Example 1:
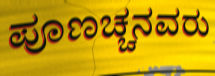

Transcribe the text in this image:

ಪೂಣಚ್ಚನವರು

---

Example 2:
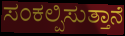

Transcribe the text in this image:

ಸಂಕಲ್ಪಿಸುತ್ತಾನೆ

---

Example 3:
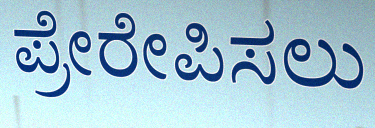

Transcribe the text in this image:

ಪ್ರೇರೇಪಿಸಲು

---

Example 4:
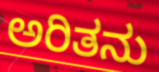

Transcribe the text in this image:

ಅರಿತನು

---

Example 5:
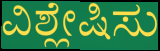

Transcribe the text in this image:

ವಿಶ್ಲೇಷಿಸು